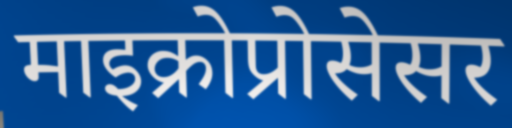
माइक्रोप्रोसेसर